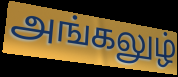
அங்கலுழ்